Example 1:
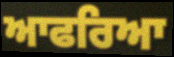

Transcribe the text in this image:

ਆਫਰਿਆ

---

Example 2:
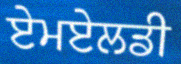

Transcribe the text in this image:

ਏਮਏਲਡੀ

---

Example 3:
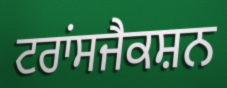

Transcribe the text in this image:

ਟਰਾਂਸਜੈਕਸ਼ਨ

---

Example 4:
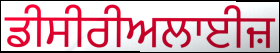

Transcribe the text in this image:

ਡੀਸੀਰੀਅਲਾਈਜ਼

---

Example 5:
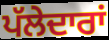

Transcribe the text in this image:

ਪੱਲੇਦਾਰਾਂ